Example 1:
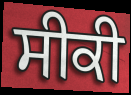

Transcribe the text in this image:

ਸੀਕੀ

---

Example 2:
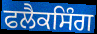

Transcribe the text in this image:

ਫਲੈਕਸਿੰਗ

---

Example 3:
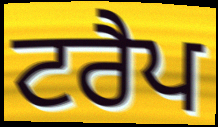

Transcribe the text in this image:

ਟਰੈਪ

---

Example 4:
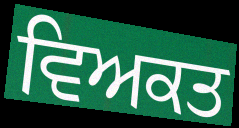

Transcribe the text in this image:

ਵਿਅਕਤ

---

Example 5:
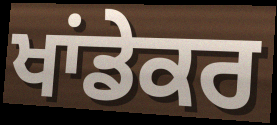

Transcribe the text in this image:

ਖਾਂਡੇਕਰ